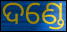
ଦଣ୍ଡେ